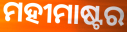
ମହୀମାଷ୍ଟର